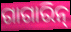
ଗାଗାରିନ୍